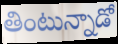
తింటున్నాడో